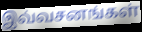
இவ்வசனங்கள்